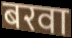
बरवा